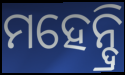
ମହେନ୍ଦ୍ରି